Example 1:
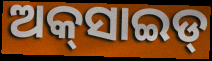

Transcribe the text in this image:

ଅକ୍‌ସାଇଡ୍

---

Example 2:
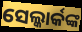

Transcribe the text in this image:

ସେଲ୍କାର୍କଙ୍କ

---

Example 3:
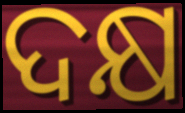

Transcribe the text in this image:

ଦକ୍ଷ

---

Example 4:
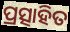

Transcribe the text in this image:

ପ୍ରତ୍ସାହିତ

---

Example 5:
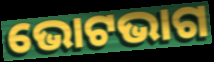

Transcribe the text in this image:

ଭୋଟଭାଗ